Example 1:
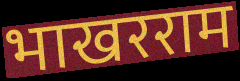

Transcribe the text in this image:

भाखरराम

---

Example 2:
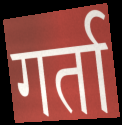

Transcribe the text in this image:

गर्ता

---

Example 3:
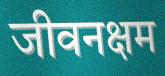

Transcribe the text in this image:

जीवनक्षम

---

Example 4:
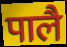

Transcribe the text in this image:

पालै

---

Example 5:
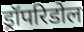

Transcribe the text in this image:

ड्रॉपरिडोल